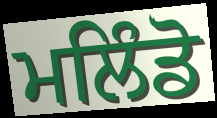
ਮਲਿੰਡੋ